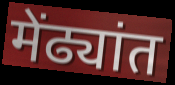
मेंढ्यांत